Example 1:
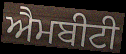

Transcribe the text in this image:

ਐਮਬੀਟੀ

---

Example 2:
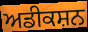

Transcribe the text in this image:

ਅਡੀਕਸ਼ਨ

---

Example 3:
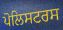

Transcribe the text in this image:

ਪੋਲਿਸਟਰਸ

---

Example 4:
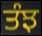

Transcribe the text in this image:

ਤੰਝ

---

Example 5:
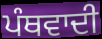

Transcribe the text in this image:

ਪੰਥਵਾਦੀ